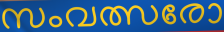
സംവത്സരോ